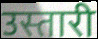
उस्तारी